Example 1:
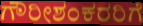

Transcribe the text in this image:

ಗೌರೀಶಂಕರರಿಗೆ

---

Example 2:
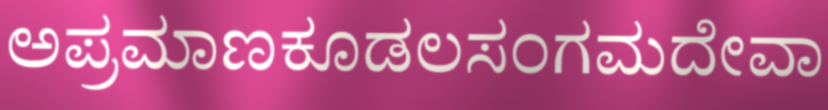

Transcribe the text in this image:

ಅಪ್ರಮಾಣಕೂಡಲಸಂಗಮದೇವಾ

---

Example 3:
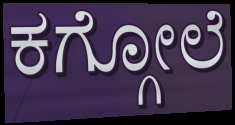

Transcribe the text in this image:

ಕಗ್ಗೋಲೆ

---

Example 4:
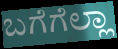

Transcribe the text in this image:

ಬಗೆಗೆಲ್ಲಾ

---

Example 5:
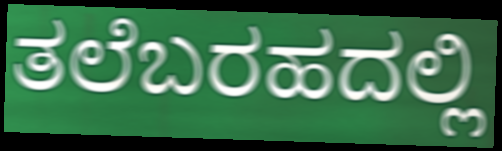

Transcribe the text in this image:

ತಲೆಬರಹದಲ್ಲಿ